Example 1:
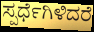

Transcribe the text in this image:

ಸ್ಪರ್ಧೆಗಿಳಿದರೆ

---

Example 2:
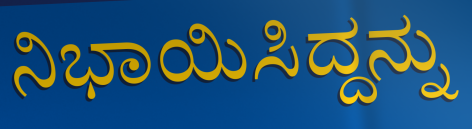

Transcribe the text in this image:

ನಿಭಾಯಿಸಿದ್ದನ್ನು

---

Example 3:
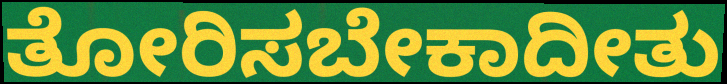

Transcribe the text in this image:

ತೋರಿಸಬೇಕಾದೀತು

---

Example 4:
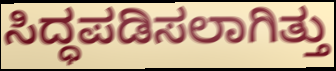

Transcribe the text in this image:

ಸಿದ್ಧಪಡಿಸಲಾಗಿತ್ತು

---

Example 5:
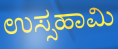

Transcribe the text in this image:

ಉಸ್ಸಹಾಮಿ